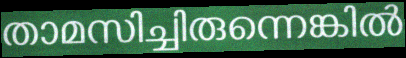
താമസിച്ചിരുന്നെങ്കിൽ